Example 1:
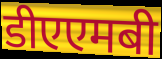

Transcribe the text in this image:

डीएएमबी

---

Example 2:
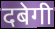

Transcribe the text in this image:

दबेगी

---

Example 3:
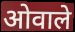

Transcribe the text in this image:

ओवाले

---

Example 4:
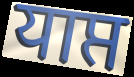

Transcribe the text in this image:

याप्त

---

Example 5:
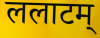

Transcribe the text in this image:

ललाटम्